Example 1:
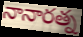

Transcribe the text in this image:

నానారత్న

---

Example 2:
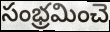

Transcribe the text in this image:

సంభ్రమించె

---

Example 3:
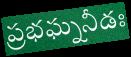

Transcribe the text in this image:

ప్రభఘ్ననీడః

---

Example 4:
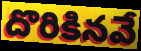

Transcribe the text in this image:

దొరికినవే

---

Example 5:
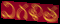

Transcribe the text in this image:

విగళిత